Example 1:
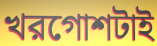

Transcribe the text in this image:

খরগোশটাই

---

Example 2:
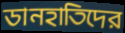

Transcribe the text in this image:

ডানহাতিদের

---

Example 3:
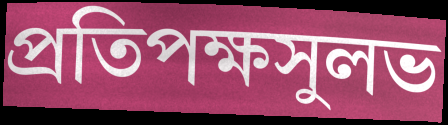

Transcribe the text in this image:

প্রতিপক্ষসুলভ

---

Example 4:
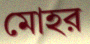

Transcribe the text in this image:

মোহর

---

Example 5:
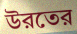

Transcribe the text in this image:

উরতের